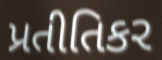
પ્રતીતિકર